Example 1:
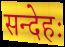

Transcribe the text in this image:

सन्देहः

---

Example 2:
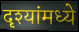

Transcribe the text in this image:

दृश्यांमध्ये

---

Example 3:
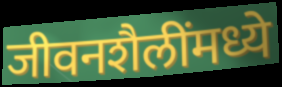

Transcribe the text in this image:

जीवनशैलींमध्ये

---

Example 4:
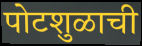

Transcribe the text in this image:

पोटशुळाची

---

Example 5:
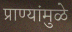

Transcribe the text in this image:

प्राण्यांमुळे